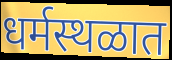
धर्मस्थळात